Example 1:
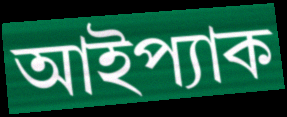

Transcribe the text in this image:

আইপ্যাক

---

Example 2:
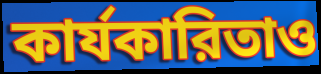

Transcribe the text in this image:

কার্যকারিতাও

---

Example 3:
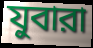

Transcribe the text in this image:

যুবারা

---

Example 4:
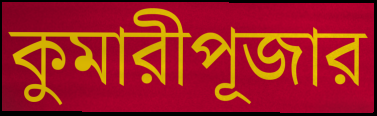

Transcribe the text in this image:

কুমারীপূজার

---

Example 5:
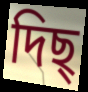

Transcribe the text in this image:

দিছ্